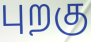
புறகு